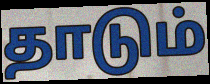
தாடும்